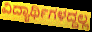
ವಿದ್ಯಾರ್ಥಿಗಳದ್ದಲ್ಲ